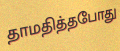
தாமதித்தபோது